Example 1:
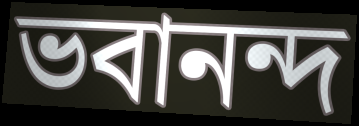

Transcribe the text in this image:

ভবানন্দ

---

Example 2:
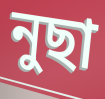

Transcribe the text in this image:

নুছা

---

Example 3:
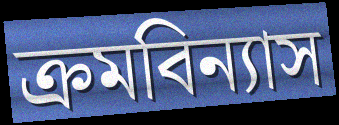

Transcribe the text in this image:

ক্ৰমবিন্যাস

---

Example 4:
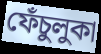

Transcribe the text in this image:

ফেঁচুলুকা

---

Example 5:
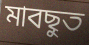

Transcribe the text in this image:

মাবছুত